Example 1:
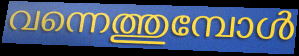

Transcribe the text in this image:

വന്നെത്തുമ്പോൾ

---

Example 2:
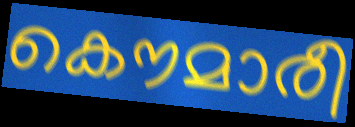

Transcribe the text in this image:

കൌമാരീ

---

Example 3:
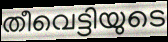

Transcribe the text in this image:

തീവെട്ടിയുടെ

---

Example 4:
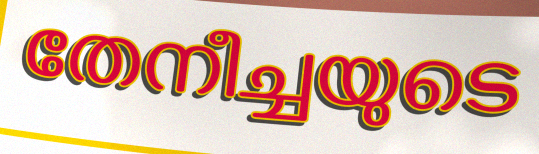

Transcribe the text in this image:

തേനീച്ചയുടെ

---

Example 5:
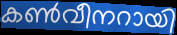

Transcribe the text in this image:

കൺവീനറായി